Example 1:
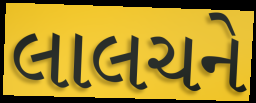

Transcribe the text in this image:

લાલચને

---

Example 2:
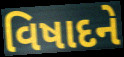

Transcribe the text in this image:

વિષાદને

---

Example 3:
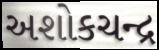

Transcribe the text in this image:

અશોકચન્દ્ર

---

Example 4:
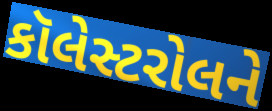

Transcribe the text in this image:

કૉલેસ્ટરોલને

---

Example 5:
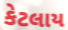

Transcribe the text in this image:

કેટલાય